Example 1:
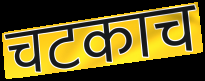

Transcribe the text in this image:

चटकाच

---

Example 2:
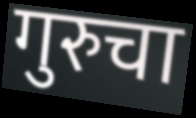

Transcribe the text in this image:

गुरुचा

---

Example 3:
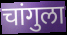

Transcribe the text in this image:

चांगुला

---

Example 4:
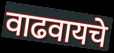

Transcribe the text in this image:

वाढवायचे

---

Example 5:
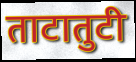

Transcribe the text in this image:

ताटातुटी